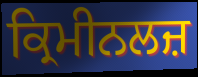
ਕ੍ਰਿਮੀਨਲਜ਼